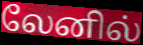
லேனில்